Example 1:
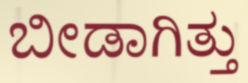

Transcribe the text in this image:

ಬೀಡಾಗಿತ್ತು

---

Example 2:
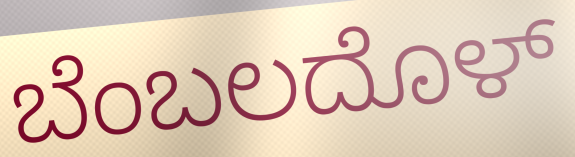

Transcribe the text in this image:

ಬೆಂಬಲದೊಳ್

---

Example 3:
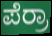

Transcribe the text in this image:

ಪೆರ್ರಾ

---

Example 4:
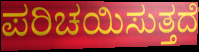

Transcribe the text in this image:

ಪರಿಚಯಿಸುತ್ತದೆ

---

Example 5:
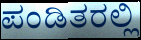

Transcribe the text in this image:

ಪಂಡಿತರಲ್ಲಿ